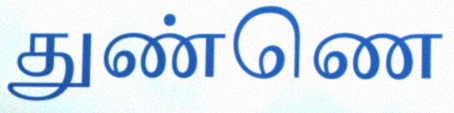
துண்ணெ